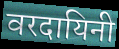
वरदायिनी